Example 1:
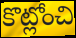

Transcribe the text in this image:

కొట్లోంచి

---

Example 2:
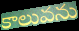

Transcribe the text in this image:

కాలువను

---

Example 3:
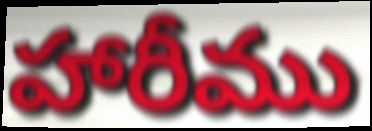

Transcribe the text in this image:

హారీము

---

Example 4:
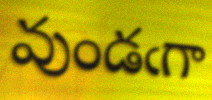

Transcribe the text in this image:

వుండఁగా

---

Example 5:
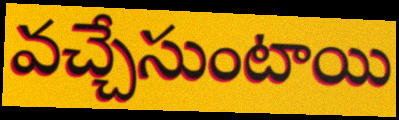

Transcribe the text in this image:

వచ్చేసుంటాయి